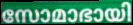
സോമാഭായി